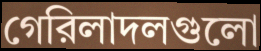
গেরিলাদলগুলো